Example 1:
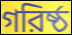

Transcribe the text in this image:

গরিষ্ঠ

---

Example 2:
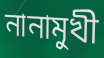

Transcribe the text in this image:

নানামুখী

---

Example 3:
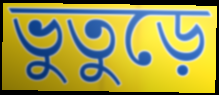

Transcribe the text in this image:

ভুতুড়ে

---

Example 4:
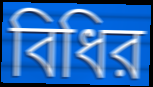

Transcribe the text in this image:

বিধির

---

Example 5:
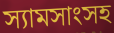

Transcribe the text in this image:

স্যামসাংসহ